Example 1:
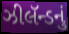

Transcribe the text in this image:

ઝીલૅન્ડનું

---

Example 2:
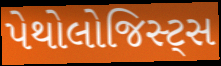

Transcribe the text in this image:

પેથોલોજિસ્ટ્સ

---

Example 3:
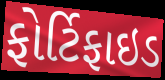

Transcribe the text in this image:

ફોર્ટિફાઇડ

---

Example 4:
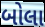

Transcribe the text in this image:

બોલા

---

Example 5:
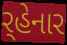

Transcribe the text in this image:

ર્‌હેનાર